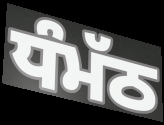
ਧੰਮੱਠ